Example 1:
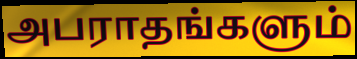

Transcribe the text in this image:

அபராதங்களும்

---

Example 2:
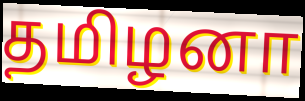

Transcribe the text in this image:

தமிழனா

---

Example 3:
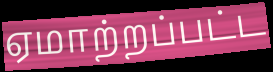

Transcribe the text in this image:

ஏமாற்றப்பட்ட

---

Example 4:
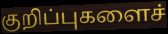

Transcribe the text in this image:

குறிப்புகளைச்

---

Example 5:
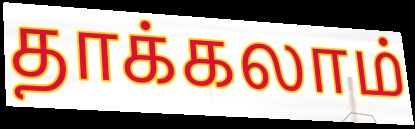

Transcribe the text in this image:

தாக்கலாம்